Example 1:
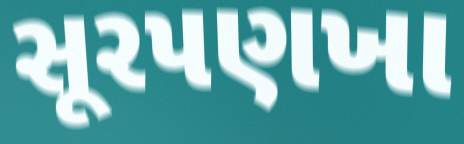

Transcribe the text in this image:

સૂરપણખા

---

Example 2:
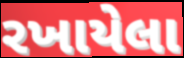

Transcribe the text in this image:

રખાયેલા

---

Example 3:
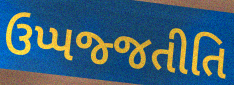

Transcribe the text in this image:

ઉપ્પજ્જતીતિ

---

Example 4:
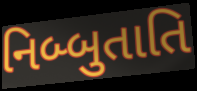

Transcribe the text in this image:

નિબ્બુતાતિ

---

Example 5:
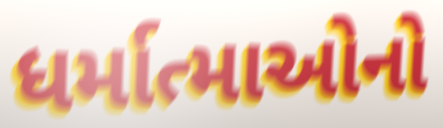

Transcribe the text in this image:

ધર્માત્માઓનો